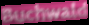
Buchwald